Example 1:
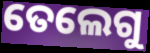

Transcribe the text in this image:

ତେଲେଗୁ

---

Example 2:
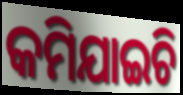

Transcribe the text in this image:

କମିଯାଇଚି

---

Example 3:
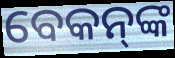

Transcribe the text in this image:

ବେକନ୍‌ଙ୍କ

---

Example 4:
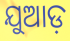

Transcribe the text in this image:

ଯୁଆଡ଼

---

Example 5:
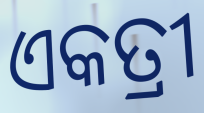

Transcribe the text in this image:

ଏକତ୍ରୀ